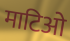
माटिओ